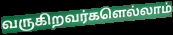
வருகிறவர்களெல்லாம்